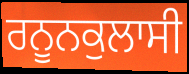
ਰਨੂਨਕੁਲਾਸੀ